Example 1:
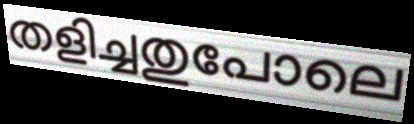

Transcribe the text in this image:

തളിച്ചതുപോലെ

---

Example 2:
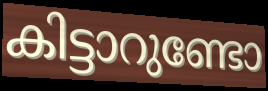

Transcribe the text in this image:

കിട്ടാറുണ്ടോ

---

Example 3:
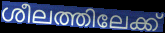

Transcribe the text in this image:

ശീലത്തിലേക്ക്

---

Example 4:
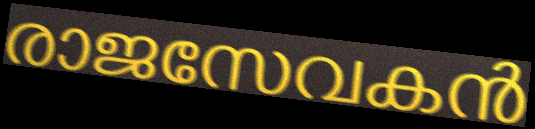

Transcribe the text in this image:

രാജസേവകൻ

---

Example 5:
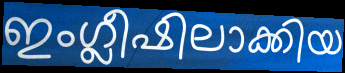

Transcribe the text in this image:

ഇംഗ്ലീഷിലാക്കിയ